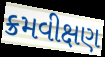
ક્રમવીક્ષણ